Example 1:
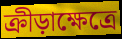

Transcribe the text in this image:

ক্রীড়াক্ষেত্রে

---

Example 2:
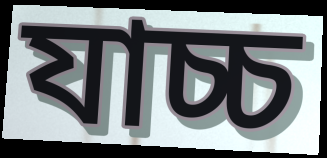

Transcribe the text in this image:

যাচ্চ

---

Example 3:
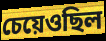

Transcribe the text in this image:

চেয়েওছিল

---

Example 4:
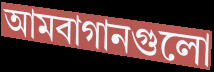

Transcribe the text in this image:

আমবাগানগুলো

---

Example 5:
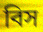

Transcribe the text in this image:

বিস